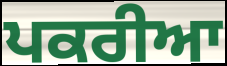
ਪਕਰੀਆ